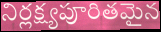
నిర్లక్ష్యపూరితమైన